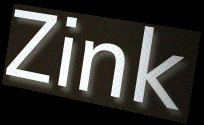
Zink